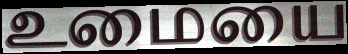
உமையை